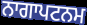
ਨਾਗਾਪਟਨਮ